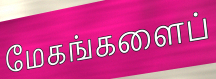
மேகங்களைப்